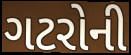
ગટરોની